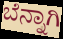
ಬೆನ್ನಾಗಿ